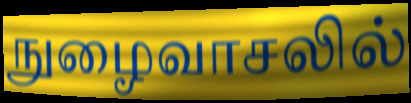
நுழைவாசலில்